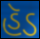
હૅડ